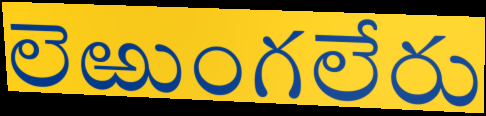
లెఱుంగలేరు